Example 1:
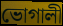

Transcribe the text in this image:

ভোগালী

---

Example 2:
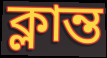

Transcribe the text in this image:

ক্লান্ত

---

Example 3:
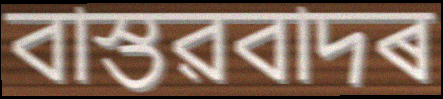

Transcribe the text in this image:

বাস্তৱবাদৰ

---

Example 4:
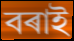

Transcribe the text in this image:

বৰাই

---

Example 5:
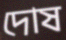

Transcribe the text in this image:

দোষ